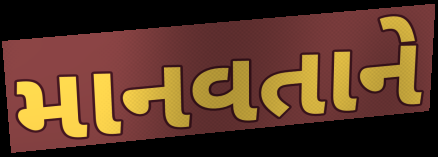
માનવતાને